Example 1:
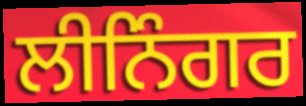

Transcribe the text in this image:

ਲੀਨਿੰਗਰ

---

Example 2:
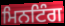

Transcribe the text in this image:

ਮਿਨਟਿੰਗ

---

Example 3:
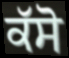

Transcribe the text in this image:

ਕੱਸੋ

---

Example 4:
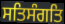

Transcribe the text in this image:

ਸਤਿਸੰਗਤਿ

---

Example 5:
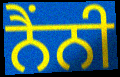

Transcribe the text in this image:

ਨੈਂਨੀ